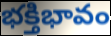
భక్తిభావం